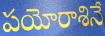
పయోరాశినే